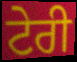
ਟੇਰੀ